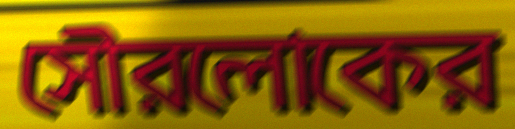
সৌরলোকের